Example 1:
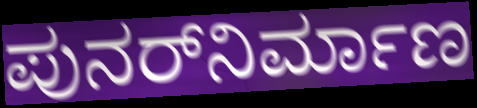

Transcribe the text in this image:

ಪುನರ್‌ನಿರ್ಮಾಣ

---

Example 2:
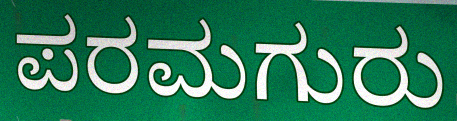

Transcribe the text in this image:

ಪರಮಗುರು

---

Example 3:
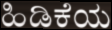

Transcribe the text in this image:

ಹಿಡಿಕೆಯ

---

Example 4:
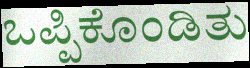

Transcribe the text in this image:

ಒಪ್ಪಿಕೊಂಡಿತು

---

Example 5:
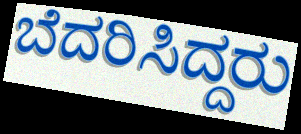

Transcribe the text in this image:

ಬೆದರಿಸಿದ್ದರು